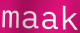
maak